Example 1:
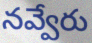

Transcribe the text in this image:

నవ్వేరు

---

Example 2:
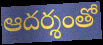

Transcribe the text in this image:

ఆదర్శంతో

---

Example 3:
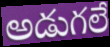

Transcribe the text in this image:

అడుగలే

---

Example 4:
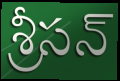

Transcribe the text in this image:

శ్రీసన్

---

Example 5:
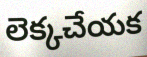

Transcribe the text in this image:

లెక్కచేయక